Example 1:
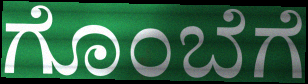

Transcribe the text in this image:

ಗೊಂಬೆಗೆ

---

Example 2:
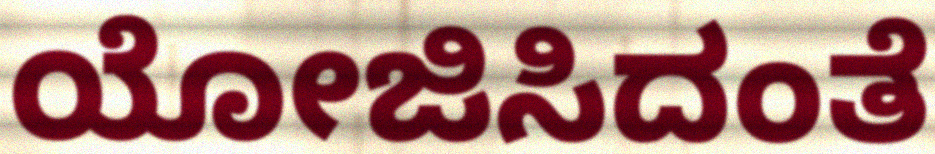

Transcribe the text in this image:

ಯೋಜಿಸಿದಂತೆ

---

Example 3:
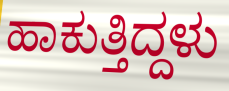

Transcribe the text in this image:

ಹಾಕುತ್ತಿದ್ದಳು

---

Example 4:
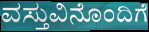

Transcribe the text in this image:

ವಸ್ತುವಿನೊಂದಿಗೆ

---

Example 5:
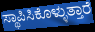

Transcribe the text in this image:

ಸ್ಥಾಪಿಸಿಕೊಳ್ಳುತ್ತಾರೆ